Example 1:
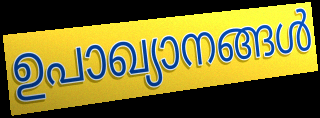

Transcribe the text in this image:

ഉപാഖ്യാനങ്ങൾ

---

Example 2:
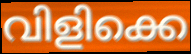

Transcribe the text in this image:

വിളിക്കെ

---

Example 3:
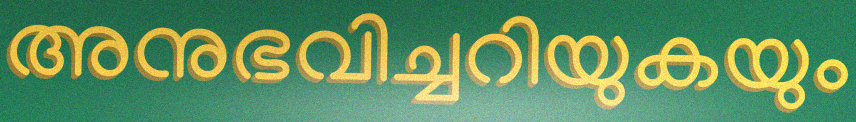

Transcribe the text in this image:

അനുഭവിച്ചറിയുകയും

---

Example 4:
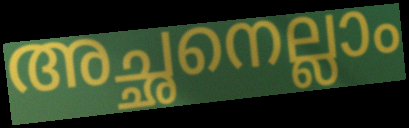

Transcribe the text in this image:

അച്ഛനെല്ലാം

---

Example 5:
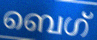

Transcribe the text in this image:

ബെഗ്